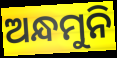
ଅନ୍ଧମୁନି